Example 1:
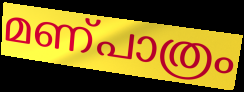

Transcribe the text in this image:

മണ്പാത്രം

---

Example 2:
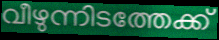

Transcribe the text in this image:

വീഴുന്നിടത്തേക്ക്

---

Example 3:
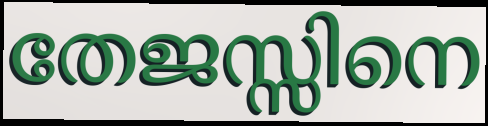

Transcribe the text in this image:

തേജസ്സിനെ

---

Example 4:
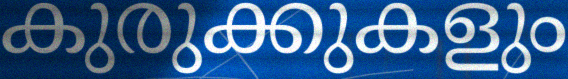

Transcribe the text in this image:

കുരുക്കുകളും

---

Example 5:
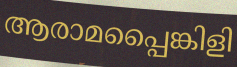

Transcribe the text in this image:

ആരാമപ്പൈങ്കിളി